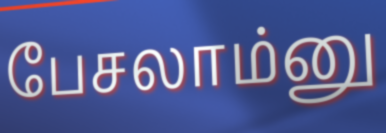
பேசலாம்னு